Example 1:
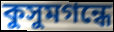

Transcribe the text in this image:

কুসুমগন্ধে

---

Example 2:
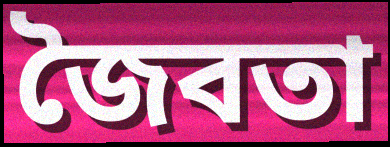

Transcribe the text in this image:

জৈবতা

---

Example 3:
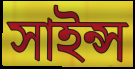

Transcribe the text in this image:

সাইন্স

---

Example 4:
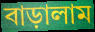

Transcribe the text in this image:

বাড়ালাম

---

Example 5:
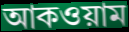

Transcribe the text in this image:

আকওয়াম